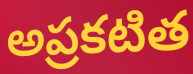
అప్రకటిత